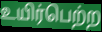
உயிர்பெற்ற